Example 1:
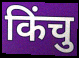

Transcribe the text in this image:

किंचु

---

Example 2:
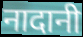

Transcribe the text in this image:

नादानी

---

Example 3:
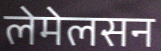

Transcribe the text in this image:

लेमेलसन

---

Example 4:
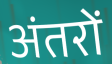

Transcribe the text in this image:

अंतरों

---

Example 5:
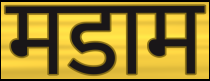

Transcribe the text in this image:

मडाम